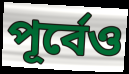
পূৰ্বেও